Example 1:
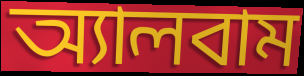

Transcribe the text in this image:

অ্যালবাম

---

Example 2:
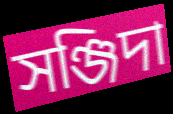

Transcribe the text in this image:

সঞ্জিদা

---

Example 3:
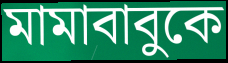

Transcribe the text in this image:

মামাবাবুকে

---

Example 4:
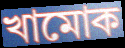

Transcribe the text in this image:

খামোক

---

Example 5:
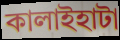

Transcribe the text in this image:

কালাইহাটা